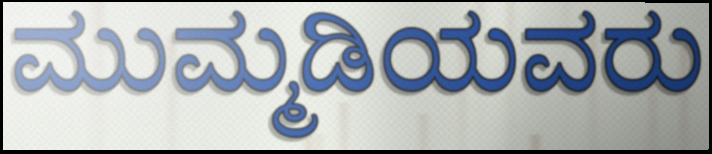
ಮುಮ್ಮಡಿಯವರು